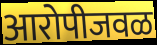
आरोपीजवळ